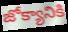
జోక్యానికి